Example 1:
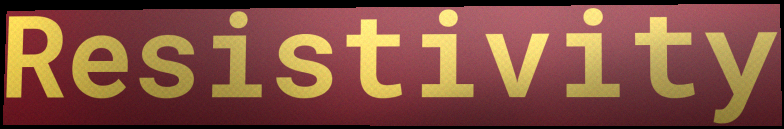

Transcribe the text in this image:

Resistivity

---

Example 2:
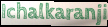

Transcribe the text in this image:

Ichalkaranji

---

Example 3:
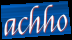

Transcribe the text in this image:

achho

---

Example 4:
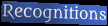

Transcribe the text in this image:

Recognitions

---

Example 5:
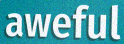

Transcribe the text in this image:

aweful